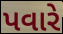
પવારે